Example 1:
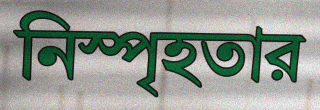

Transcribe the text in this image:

নিস্পৃহতার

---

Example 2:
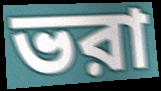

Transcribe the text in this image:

ভরা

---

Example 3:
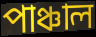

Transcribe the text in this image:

পাঞ্চাল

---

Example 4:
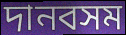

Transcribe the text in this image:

দানবসম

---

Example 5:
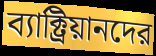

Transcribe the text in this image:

ব্যাক্ট্রিয়ানদের